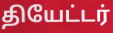
தியேட்டர்